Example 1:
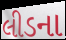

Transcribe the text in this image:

લીડના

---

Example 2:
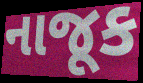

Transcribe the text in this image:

નાજૂક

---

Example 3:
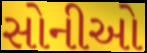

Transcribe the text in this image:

સોનીઓ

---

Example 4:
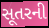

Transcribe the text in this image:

સૂતરની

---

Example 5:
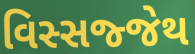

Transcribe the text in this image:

વિસ્સજ્જેથ